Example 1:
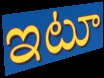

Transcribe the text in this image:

ఇటూ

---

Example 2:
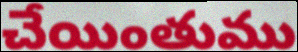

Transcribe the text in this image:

చేయింతుము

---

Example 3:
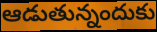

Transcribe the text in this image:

ఆడుతున్నందుకు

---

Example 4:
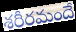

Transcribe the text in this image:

శరీరమందే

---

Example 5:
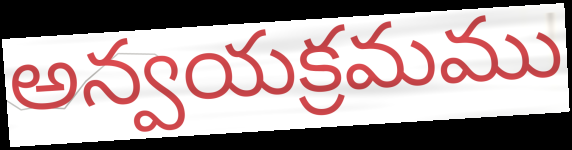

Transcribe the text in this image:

అన్వయక్రమము